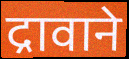
द्रावाने